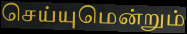
செய்யுமென்றும்